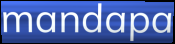
mandapa